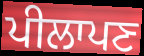
ਪੀਲਾਪਣ